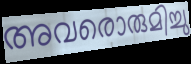
അവരൊരുമിച്ചു